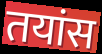
तयांस